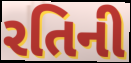
રતિની